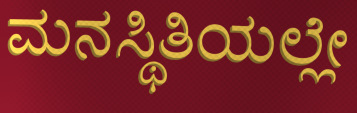
ಮನಸ್ಥಿತಿಯಲ್ಲೇ